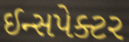
ઈન્સપેક્ટર